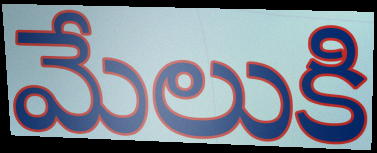
మేలుకి